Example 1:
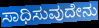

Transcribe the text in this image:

ಸಾಧಿಸುವುದೇನು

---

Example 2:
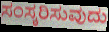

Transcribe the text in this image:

ಸಂಸ್ಕರಿಸುವುದು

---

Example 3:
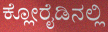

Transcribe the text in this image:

ಕ್ಲೋರೈಡಿನಲ್ಲಿ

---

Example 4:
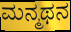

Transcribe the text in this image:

ಮನ್ಮಥನ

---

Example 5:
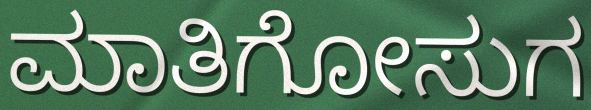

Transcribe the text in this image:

ಮಾತಿಗೋಸುಗ